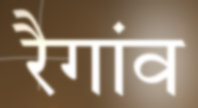
रैगांव